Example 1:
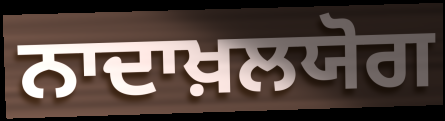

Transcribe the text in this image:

ਨਾਦਾਖ਼ਲਯੋਗ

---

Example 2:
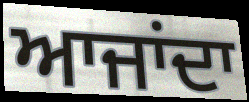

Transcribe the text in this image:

ਆਜਾਂਦਾ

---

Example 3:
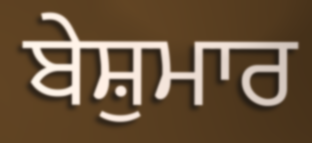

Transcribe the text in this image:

ਬੇਸ਼ੁਮਾਰ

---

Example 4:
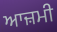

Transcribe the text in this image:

ਆਜ਼ਮੀ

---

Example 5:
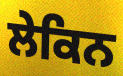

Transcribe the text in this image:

ਲੇਕਿਨ